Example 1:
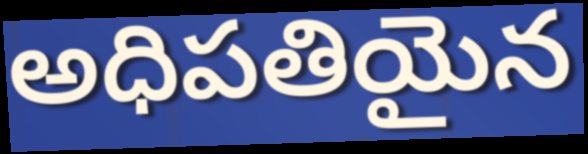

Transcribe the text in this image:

అధిపతియైన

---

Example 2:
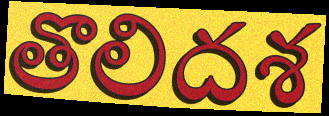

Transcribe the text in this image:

తొలిదశ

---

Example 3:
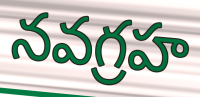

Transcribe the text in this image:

నవగ్రహ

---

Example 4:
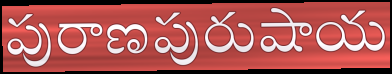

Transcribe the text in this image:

పురాణపురుషాయ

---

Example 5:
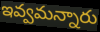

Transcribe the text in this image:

ఇవ్వమన్నారు